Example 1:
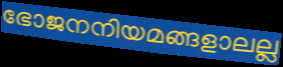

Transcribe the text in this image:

ഭോജനനിയമങ്ങളാലല്ല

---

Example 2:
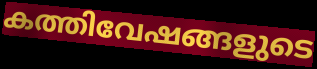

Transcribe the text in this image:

കത്തിവേഷങ്ങളുടെ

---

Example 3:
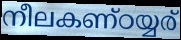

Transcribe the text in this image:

നീലകണ്ഠയ്യര്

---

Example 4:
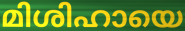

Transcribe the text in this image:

മിശിഹായെ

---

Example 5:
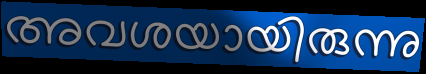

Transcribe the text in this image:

അവശയായിരുന്നു